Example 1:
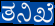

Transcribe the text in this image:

ತನಿಖೆ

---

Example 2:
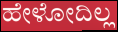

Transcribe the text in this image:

ಹೇಳೋದಿಲ್ಲ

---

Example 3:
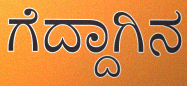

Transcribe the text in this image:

ಗೆದ್ದಾಗಿನ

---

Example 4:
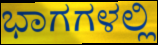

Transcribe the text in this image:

ಭಾಗಗಳಲ್ಲಿ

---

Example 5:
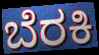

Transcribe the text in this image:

ಬೆರಕಿ